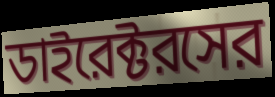
ডাইরেক্টরসের